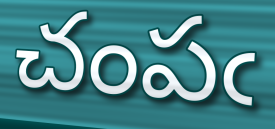
చంపఁ